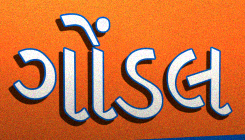
ગોંડલ